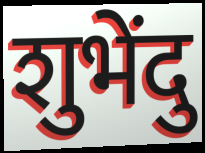
शुभेंदु